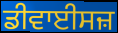
ਡੀਵਾਈਸਜ਼